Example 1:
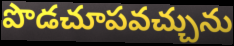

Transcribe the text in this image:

పొడచూపవచ్చును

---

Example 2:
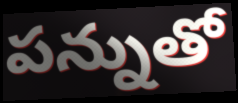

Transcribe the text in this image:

పన్నుతో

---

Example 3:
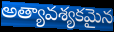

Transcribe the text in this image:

అత్యావశ్యకమైన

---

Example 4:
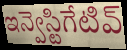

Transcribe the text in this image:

ఇన్వెస్టిగేటివ్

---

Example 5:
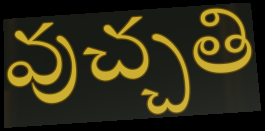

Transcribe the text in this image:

వుచ్చతి